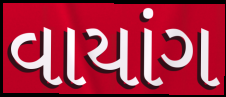
વાયાંગ